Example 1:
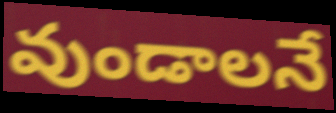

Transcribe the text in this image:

వుండాలనే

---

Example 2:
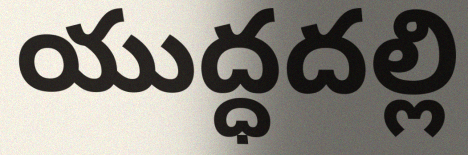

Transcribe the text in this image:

యుద్ధదల్లి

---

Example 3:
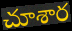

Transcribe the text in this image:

చూశార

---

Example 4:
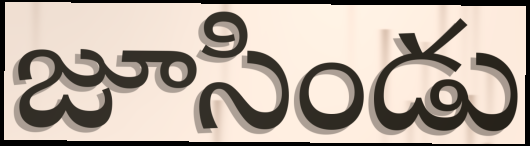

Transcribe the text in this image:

జూసిండు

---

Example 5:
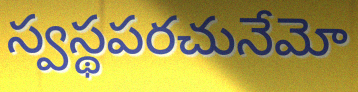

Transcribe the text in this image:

స్వస్థపరచునేమో